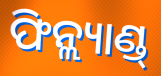
ଫିନ୍ଲ୍ୟାଣ୍ଡ୍